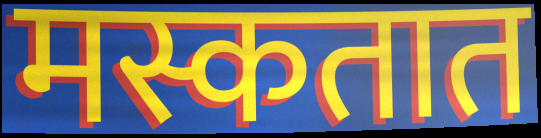
मस्कतात